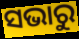
ସଭାରୁ